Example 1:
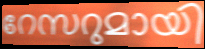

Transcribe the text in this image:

റേസറുമായി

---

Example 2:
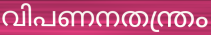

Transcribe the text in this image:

വിപണനതന്ത്രം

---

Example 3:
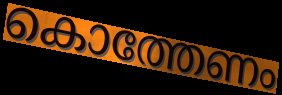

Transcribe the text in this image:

കൊത്തേണം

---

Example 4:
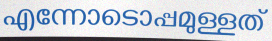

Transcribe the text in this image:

എന്നോടൊപ്പമുള്ളത്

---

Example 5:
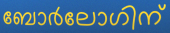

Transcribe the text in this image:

ബോർലോഗിന്